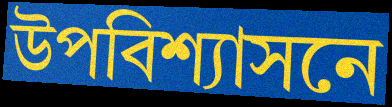
উপবিশ্যাসনে